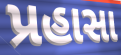
પ્રહાસા